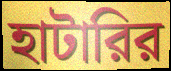
হাটারির